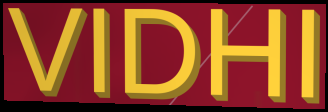
VIDHI